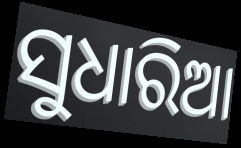
ସୁଧାରିଆ